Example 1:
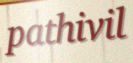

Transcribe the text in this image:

pathivil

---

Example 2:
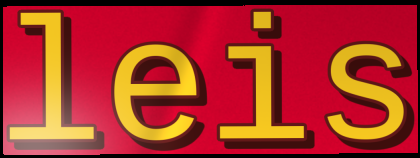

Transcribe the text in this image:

leis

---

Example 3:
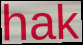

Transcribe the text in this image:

hak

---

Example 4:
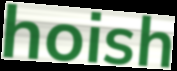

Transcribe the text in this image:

hoish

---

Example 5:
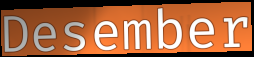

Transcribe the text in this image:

Desember